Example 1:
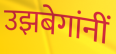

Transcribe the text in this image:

उझबेगांनीं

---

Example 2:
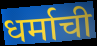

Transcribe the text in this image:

धर्माची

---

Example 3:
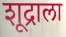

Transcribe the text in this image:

शूद्राला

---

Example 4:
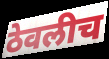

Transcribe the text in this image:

ठेवलीच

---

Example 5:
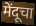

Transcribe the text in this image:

मेंदूचा